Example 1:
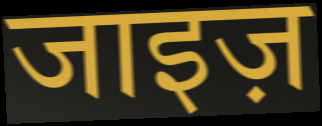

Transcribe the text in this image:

जाइज़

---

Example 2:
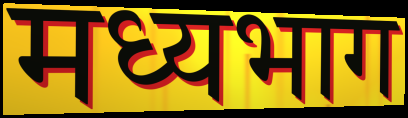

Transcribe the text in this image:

मध्यभाग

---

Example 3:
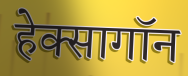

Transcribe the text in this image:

हेक्सागॉन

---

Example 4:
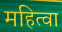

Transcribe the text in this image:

महित्वा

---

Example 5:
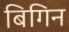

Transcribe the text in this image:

बिगिन